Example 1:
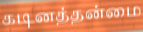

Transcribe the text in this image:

கடினத்தன்மை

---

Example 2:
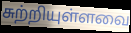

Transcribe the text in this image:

சுற்றியுள்ளவை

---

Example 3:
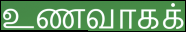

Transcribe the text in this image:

உணவாகக்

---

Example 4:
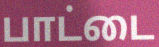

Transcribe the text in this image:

பாட்டை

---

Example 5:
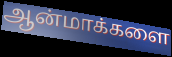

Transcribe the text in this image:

ஆன்மாக்களை